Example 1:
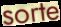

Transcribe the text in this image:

sorte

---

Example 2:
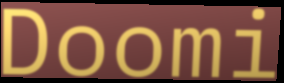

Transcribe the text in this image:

Doomi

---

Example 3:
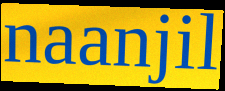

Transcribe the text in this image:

naanjil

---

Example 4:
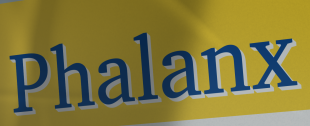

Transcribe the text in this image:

Phalanx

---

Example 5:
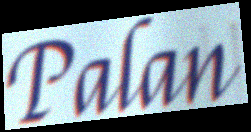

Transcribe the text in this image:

Palan